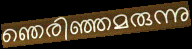
ഞെരിഞ്ഞമരുന്നു